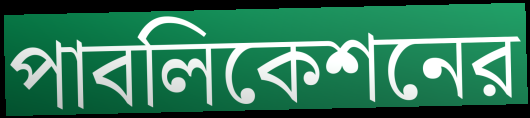
পাবলিকেশনের